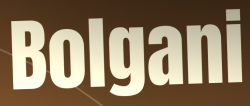
Bolgani